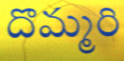
దొమ్మరి